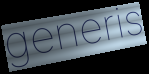
generis